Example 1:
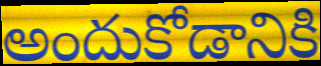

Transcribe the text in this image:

అందుకోడానికి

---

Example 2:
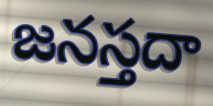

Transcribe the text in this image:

జనస్తదా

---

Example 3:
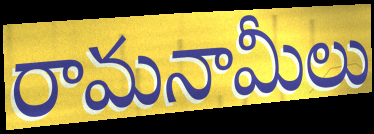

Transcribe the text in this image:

రామనామీలు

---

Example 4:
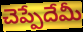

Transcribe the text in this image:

చెప్పేదేమీ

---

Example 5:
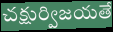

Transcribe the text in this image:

చక్షుర్విజయతే